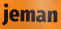
jeman